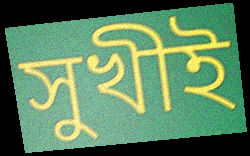
সুখীই